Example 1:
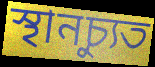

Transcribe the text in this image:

স্থানচ্যুত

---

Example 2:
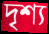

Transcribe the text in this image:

দৃশ্য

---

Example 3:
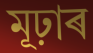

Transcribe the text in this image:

মূঢ়াৰ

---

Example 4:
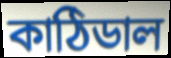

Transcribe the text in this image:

কাঠিডাল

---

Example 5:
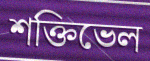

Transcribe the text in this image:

শক্তিভেল